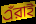
এঁরাই